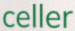
celler